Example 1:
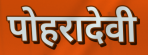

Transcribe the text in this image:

पोहरादेवी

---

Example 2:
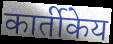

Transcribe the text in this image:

कार्तीकेय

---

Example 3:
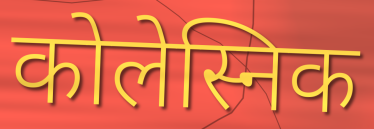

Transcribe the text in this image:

कोलेस्निक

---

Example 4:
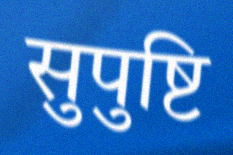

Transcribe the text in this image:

सुपुष्टि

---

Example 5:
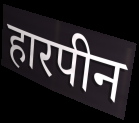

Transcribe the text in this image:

हारपीन